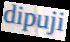
dipuji